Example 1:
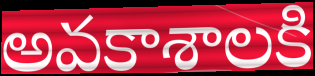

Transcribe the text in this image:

అవకాశాలకి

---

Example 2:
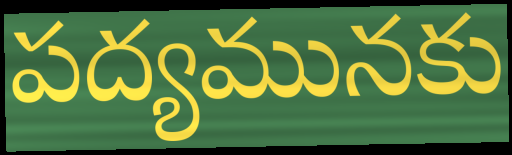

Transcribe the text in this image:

పద్యమునకు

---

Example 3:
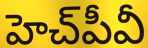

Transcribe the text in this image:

హెచ్‌పీవీ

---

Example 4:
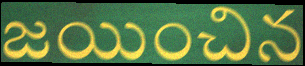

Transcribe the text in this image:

జయించిన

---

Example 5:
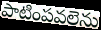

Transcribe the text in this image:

పాటింపవలెను